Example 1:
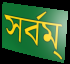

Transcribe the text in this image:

সর্বম্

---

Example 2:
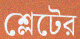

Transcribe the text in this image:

শ্লেটের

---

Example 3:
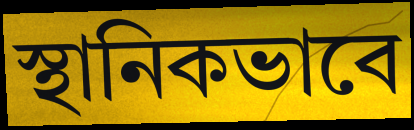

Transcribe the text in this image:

স্থানিকভাবে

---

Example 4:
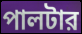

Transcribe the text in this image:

পালটার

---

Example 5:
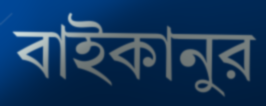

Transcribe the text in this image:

বাইকানুর